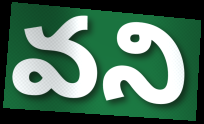
వని